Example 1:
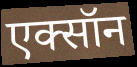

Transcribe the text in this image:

एक्सॉन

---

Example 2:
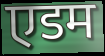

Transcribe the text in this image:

एडम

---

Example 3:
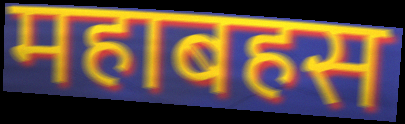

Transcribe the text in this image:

महाबहस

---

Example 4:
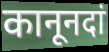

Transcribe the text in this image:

कानूनदां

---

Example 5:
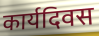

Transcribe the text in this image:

कार्यदिवस